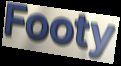
Footy